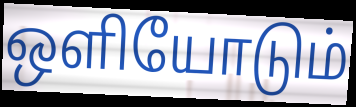
ஒளியோடும்